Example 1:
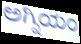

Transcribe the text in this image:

ಅಗ್ನಿಯಂ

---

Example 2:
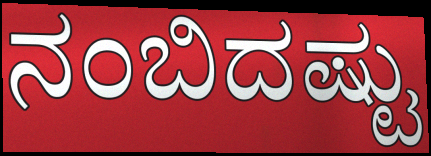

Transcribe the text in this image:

ನಂಬಿದಷ್ಟು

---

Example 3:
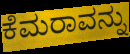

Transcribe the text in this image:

ಕೆಮರಾವನ್ನು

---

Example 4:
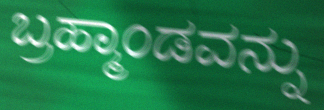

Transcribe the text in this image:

ಬ್ರಹ್ಮಾಂಡವನ್ನು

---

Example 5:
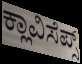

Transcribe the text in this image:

ಕ್ಲಾವಿಸೆಪ್ಸ್